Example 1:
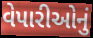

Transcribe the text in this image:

વેપારીઓનું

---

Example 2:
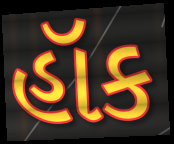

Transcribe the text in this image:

હૉક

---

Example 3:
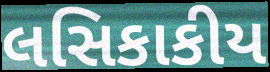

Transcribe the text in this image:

લસિકાકીય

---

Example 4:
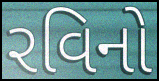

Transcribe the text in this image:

રવિનો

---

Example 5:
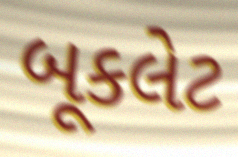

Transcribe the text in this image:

બૂકલેટ